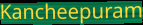
Kancheepuram